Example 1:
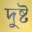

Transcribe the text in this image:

দুষ্ট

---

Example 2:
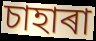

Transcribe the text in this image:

চাহাৰা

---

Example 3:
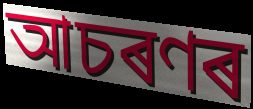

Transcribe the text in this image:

আচৰণৰ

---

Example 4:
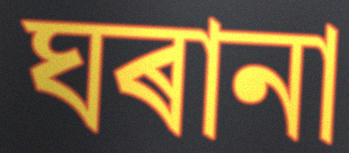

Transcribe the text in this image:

ঘৰানা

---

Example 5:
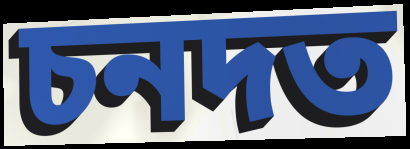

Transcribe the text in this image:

চনদত